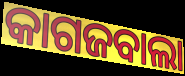
କାଗଜବାଲା